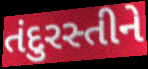
તંદુરસ્તીને